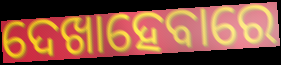
ଦେଖାହେବାରେ